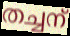
തച്ചന്